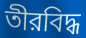
তীরবিদ্ধ